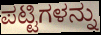
ಪಟ್ಟಿಗಳನ್ನು